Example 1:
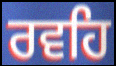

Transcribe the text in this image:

ਰਵਹਿ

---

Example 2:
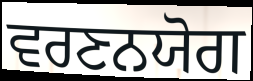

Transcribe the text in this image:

ਵਰਣਨਯੋਗ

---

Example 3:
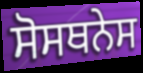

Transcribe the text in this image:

ਸੋਸਥਨੇਸ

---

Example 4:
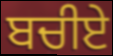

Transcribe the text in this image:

ਬਚੀਏ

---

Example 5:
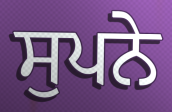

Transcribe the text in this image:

ਸੁਪਨੇ